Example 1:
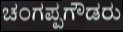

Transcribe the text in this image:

ಚಂಗಪ್ಪಗೌಡರು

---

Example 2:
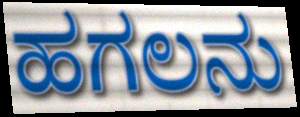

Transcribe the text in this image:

ಹಗಲನು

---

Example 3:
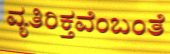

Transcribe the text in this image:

ವ್ಯತಿರಿಕ್ತವೆಂಬಂತೆ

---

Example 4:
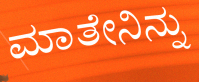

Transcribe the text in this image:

ಮಾತೇನಿನ್ನು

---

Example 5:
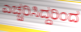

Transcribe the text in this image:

ಎಚ್ಚರಿಸಿದ್ದರಿಂದ